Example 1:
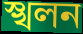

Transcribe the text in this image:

স্খলন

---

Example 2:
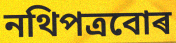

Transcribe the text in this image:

নথিপত্ৰবোৰ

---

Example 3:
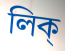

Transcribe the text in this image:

লিক্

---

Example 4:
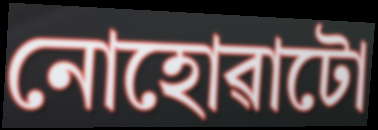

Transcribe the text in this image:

নোহোৱাটো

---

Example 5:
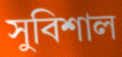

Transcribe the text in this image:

সুবিশাল